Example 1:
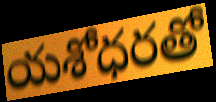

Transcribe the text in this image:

యశోధరతో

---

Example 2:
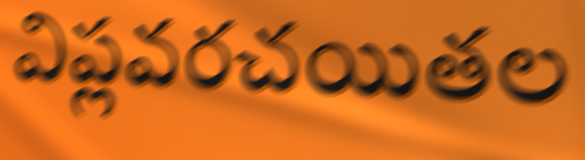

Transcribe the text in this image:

విప్లవరచయితల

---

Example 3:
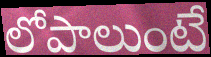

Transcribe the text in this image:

లోపాలుంటే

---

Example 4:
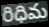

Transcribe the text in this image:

రిధిమ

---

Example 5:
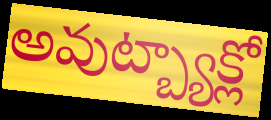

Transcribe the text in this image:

అవుట్బ్యాక్లో